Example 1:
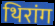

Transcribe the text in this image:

थिरांग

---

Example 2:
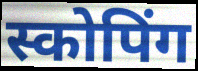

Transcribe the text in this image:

स्कोपिंग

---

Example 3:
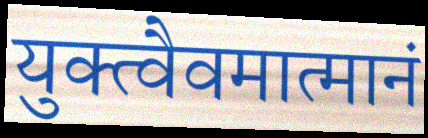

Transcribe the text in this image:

युक्त्वैवमात्मानं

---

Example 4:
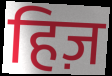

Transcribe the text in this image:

हिज़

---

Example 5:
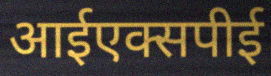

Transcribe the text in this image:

आईएक्सपीई